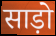
साड़ो